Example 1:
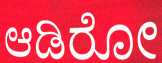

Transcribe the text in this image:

ಆಡಿರೋ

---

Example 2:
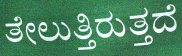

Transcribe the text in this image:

ತೇಲುತ್ತಿರುತ್ತದೆ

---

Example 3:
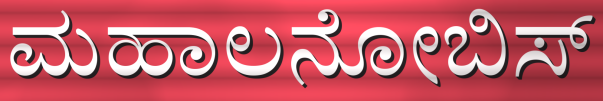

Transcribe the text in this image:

ಮಹಾಲನೋಬಿಸ್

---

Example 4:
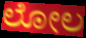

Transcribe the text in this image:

ಲೋಲ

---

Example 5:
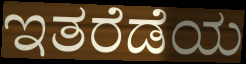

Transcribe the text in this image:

ಇತರೆಡೆಯ